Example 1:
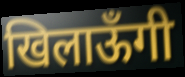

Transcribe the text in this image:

खिलाऊँगी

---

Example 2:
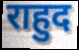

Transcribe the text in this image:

राहुद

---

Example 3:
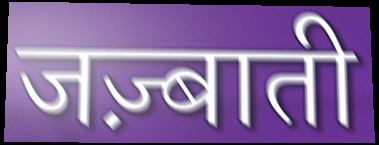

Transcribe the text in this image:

जज़्बाती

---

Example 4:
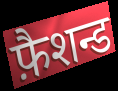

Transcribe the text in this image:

फ़ैशन्ड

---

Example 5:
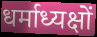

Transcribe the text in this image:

धर्माध्यक्षों